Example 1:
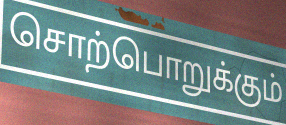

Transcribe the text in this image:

சொற்பொறுக்கும்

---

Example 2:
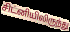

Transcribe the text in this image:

சிட்னியிலிருந்து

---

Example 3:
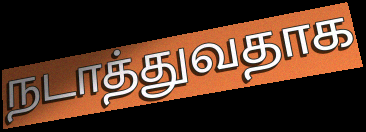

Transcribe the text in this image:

நடாத்துவதாக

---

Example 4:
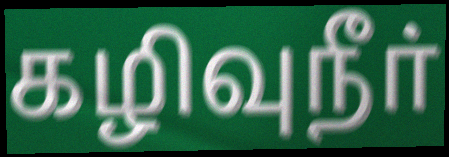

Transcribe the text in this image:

கழிவுநீர்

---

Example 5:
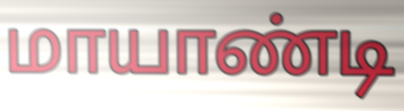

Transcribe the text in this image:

மாயாண்டி